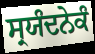
ਸ੍ਰਯੰਦਨੇਕੰ